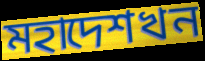
মহাদেশখন